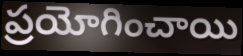
ప్రయోగించాయి